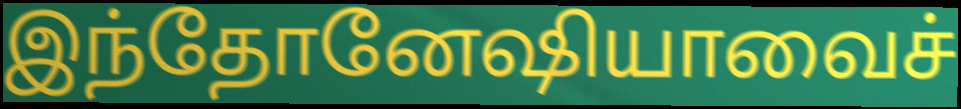
இந்தோனேஷியாவைச்